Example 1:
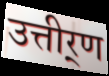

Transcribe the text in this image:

उत्तीर्ण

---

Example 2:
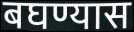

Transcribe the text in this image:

बघण्यास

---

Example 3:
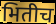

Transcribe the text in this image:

भितीच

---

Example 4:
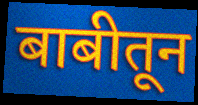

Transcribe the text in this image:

बाबीतून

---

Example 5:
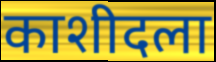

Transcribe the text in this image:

काशीदला